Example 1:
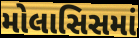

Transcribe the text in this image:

મોલાસિસમાં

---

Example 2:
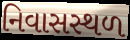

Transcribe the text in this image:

નિવાસસ્થળ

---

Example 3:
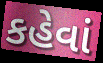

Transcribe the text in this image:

કહેવાં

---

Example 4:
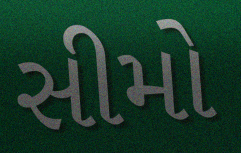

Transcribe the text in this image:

સીમો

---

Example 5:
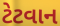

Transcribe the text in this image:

ટેટવાન